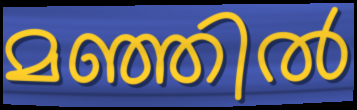
മഞ്ഞിൽ